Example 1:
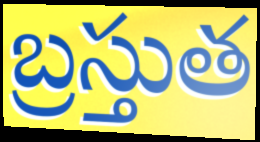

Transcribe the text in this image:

బ్రస్తుత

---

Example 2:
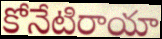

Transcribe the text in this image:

కోనేటిరాయా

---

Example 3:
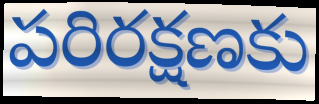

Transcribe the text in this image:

పరిరక్షణకు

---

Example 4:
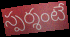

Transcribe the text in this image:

స్పర్శంటే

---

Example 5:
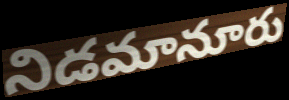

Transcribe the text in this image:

నిడమానూరు